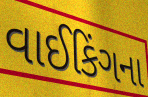
વાઈકિંગના